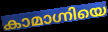
കാമാഗ്നിയെ